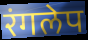
रंगलेप